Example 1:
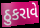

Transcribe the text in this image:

ઠુકરાવે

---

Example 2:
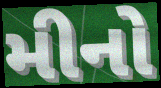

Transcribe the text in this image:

મીનો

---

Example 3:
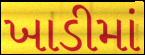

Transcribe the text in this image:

ખાડીમાં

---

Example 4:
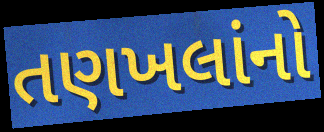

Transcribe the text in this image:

તણખલાંનો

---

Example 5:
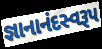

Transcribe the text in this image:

જ્ઞાનાનંદસ્વરૂપ